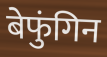
बेफुंगिन